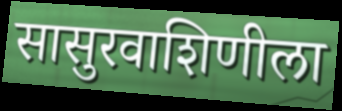
सासुरवाशिणीला